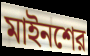
মাইনশের